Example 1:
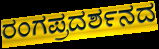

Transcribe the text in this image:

ರಂಗಪ್ರದರ್ಶನದ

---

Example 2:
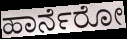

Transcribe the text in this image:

ಹಾರ್ನೆರೋ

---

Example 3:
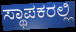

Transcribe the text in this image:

ಸ್ಥಾಪಕರಲ್ಲಿ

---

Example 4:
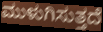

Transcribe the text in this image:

ಮುಳುಗಿಸುತ್ತದೆ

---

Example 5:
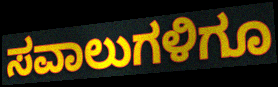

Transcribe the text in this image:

ಸವಾಲುಗಳಿಗೂ